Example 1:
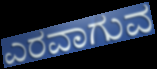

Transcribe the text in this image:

ಎರವಾಗುವ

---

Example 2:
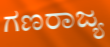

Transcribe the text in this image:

ಗಣರಾಜ್ಯ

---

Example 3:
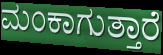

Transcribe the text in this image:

ಮಂಕಾಗುತ್ತಾರೆ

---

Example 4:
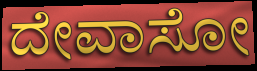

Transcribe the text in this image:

ದೇವಾಸೋ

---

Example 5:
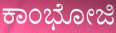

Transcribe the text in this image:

ಕಾಂಭೋಜಿ